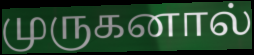
முருகனால்